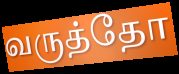
வருத்தோ